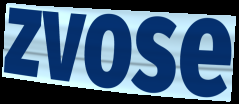
zvose